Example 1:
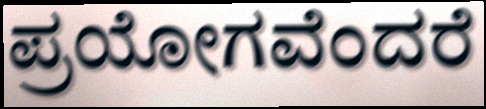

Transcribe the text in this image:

ಪ್ರಯೋಗವೆಂದರೆ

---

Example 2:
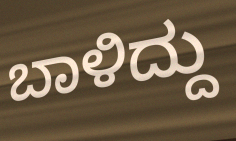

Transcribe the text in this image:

ಬಾಳಿದ್ದು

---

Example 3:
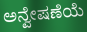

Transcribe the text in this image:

ಅನ್ವೇಷಣೆಯೆ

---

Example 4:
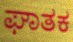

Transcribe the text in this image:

ಘಾತಕ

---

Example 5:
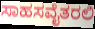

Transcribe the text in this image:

ಸಾಹಸವೈತರಲಿ